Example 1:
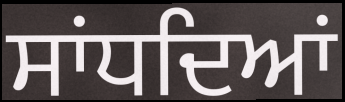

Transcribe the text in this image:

ਸਾਂਧਦਿਆਂ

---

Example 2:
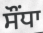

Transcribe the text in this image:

ਸੌਂਧਾ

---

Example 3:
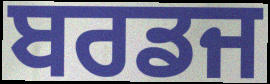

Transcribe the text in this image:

ਬਰਡਜ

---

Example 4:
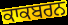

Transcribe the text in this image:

ਕਾਕਬਰਨ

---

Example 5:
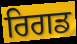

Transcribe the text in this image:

ਰਿਗਡ